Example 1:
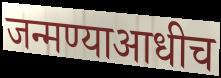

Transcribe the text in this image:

जन्मण्याआधीच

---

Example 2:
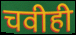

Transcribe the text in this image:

चवीही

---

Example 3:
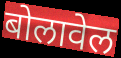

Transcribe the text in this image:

बोलावेल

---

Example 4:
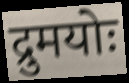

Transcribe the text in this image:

द्रुमयोः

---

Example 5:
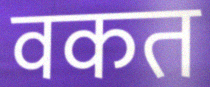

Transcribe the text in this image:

वकत